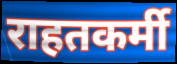
राहतकर्मी